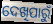
ଦେଖିପାରୁଁ